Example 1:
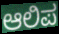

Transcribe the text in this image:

ಆಲಿಪ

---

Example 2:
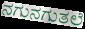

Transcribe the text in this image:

ನಗುನಗುತಲೆ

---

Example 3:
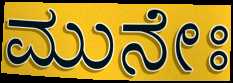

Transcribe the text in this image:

ಮುನೇಃ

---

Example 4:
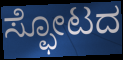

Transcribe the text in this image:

ಸ್ಫೋಟದ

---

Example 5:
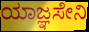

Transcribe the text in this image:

ಯಾಜ್ಞಸೇನಿ